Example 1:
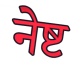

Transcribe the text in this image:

नेष्ट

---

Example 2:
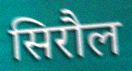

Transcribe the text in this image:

सिरौल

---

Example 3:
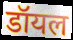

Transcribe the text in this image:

डॉयल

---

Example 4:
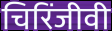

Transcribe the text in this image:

चिरिंजीवी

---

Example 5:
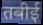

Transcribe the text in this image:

तबीई